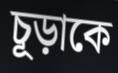
চূড়াকে